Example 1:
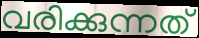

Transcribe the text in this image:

വരിക്കുന്നത്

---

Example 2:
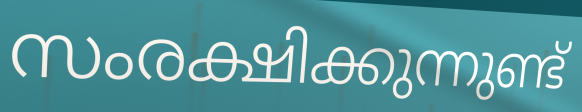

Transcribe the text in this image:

സംരക്ഷിക്കുന്നുണ്ട്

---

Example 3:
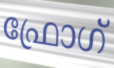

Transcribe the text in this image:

ഫ്രോഗ്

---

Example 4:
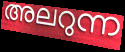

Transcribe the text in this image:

അലറുന്ന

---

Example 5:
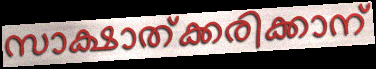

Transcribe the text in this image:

സാക്ഷാത്ക്കരിക്കാന്